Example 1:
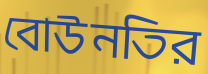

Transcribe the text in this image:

বোউনতির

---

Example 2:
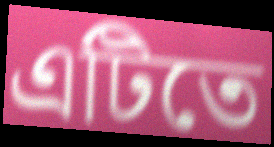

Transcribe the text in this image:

এটিতে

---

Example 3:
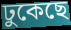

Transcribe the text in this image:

ঢুকেছে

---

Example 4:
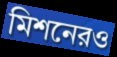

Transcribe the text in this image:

মিশনেরও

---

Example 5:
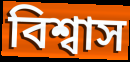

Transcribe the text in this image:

বিশ্বাস